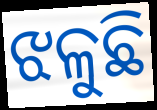
ଝଳୁଛି